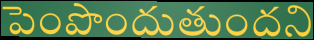
పెంపొందుతుందని